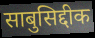
साबुसिद्दीक